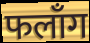
फलाँग